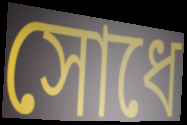
সোধে